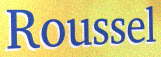
Roussel